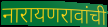
नारायणरावांची